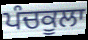
ਪੰਚਕੂਲਾ